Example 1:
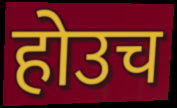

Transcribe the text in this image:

होउच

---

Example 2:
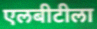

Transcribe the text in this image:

एलबीटीला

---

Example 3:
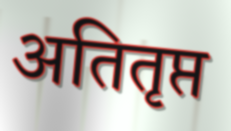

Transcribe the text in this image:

अतितृप्त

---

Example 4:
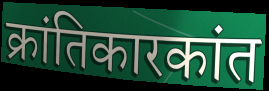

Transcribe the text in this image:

क्रांतिकारकांत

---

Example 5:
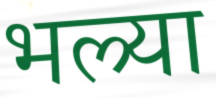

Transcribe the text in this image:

भल्या